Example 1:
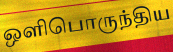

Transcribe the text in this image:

ஒளிபொருந்திய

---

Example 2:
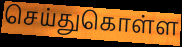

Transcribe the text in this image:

செய்துகொள்ள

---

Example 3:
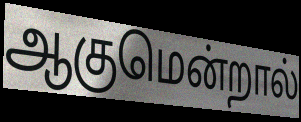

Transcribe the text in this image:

ஆகுமென்றால்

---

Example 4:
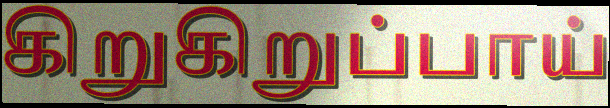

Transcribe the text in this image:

கிறுகிறுப்பாய்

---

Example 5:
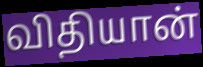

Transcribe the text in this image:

விதியான்